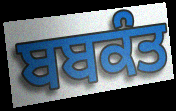
ਬਬਕੰਤ